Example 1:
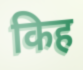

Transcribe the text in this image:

किह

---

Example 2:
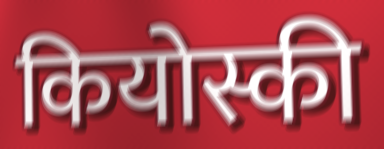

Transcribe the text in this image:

कियोस्की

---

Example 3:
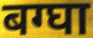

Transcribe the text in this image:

बग्घा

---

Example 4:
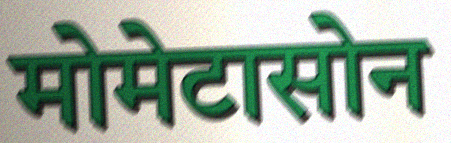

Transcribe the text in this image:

मोमेटासोन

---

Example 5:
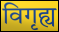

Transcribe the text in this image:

विगृह्य